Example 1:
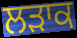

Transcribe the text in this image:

ਲੜਾਕ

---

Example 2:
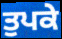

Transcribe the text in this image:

ਤੁਪਕੇ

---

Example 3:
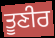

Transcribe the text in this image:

ਤੂਣੀਰ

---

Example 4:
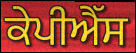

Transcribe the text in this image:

ਕੇਪੀਐੱਸ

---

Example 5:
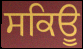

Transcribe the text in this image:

ਸਕਿਊ